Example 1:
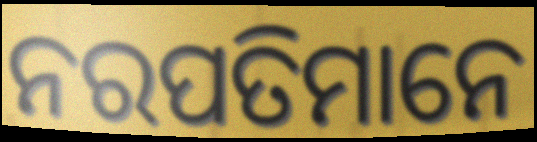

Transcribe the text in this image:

ନରପତିମାନେ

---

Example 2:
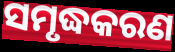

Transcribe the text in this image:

ସମୃଦ୍ଧକରଣ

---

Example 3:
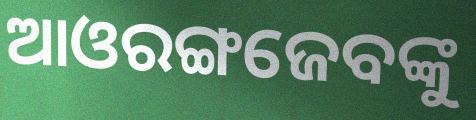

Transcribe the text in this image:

ଆଓରଙ୍ଗଜେବଙ୍କୁ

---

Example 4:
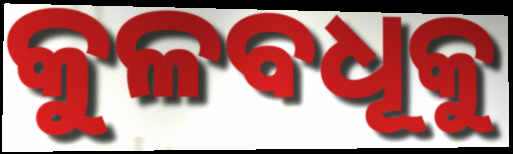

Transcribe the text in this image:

କୁଳବଧୂକୁ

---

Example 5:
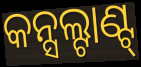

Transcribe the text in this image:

କନ୍ସଲ୍ଟାଣ୍ଟ୍